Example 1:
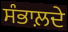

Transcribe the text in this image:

ਸੰਭਾਲ਼ਦੇ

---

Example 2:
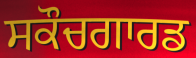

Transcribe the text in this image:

ਸਕੌਚਗਾਰਡ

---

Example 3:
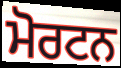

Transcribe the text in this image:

ਮੋਰਟਨ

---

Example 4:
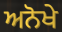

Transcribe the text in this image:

ਅਨੋਖੇ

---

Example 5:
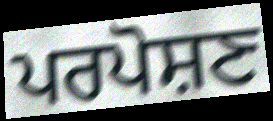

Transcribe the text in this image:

ਪਰਪੋਸ਼ਣ